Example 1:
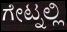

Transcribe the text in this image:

ಗೇಟ್ನಲ್ಲಿ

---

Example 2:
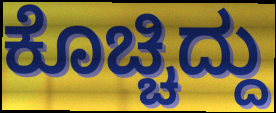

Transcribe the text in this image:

ಕೊಚ್ಚಿದ್ದು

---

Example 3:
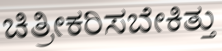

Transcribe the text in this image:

ಚಿತ್ರೀಕರಿಸಬೇಕಿತ್ತು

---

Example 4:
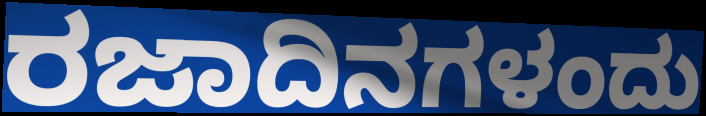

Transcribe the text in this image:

ರಜಾದಿನಗಳಂದು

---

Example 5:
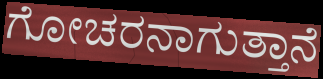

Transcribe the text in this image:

ಗೋಚರನಾಗುತ್ತಾನೆ